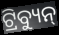
ଟ୍ରିବ୍ୟୁନ୍